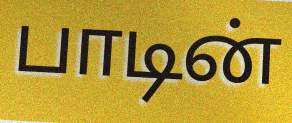
பாடின்